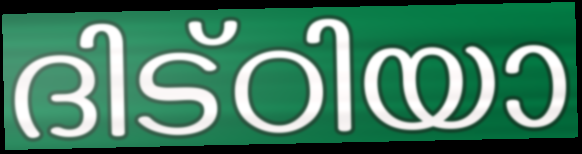
ദിട്ഠിയാ